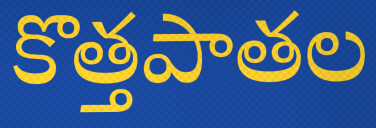
కొత్తపాతల